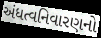
અંધત્વનિવારણનો